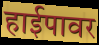
हाईपावर